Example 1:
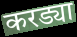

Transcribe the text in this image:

करड्या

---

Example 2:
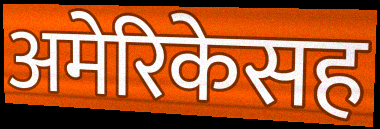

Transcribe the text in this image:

अमेरिकेसह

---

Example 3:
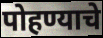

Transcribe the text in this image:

पोहण्याचे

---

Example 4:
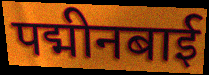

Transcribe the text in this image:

पद्मीनबाई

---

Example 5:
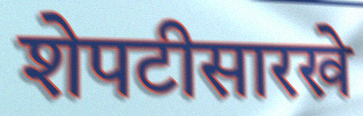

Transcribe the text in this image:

शेपटीसारखे